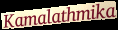
Kamalathmika